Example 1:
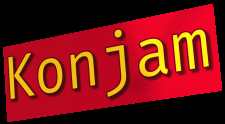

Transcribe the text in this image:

Konjam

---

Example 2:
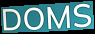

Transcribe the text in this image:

DOMS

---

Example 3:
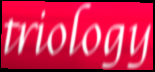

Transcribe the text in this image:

triology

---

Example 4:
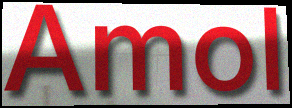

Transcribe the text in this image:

Amol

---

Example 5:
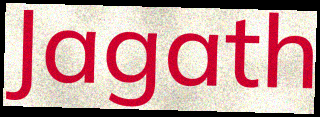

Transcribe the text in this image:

Jagath